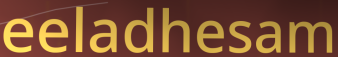
eeladhesam